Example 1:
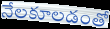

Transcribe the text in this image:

నేలకూలడంతో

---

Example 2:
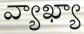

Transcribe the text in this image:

వ్యాఖ్యా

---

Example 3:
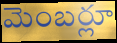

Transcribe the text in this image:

మెంబర్లూ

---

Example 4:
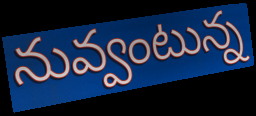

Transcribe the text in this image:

నువ్వంటున్న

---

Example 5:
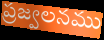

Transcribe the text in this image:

ప్రజ్వలనము